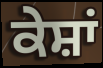
ਕੇਸ਼ਾਂ